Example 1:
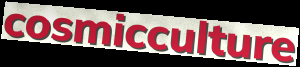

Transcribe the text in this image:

cosmicculture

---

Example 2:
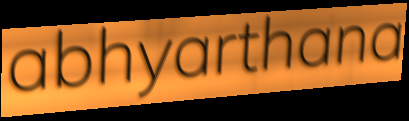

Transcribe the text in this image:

abhyarthana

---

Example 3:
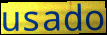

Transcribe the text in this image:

usado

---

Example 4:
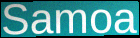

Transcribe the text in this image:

Samoa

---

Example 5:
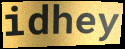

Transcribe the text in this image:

idhey